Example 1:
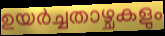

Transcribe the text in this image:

ഉയർച്ചതാഴ്ചകളും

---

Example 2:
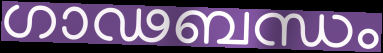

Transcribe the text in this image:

ഗാഢബന്ധം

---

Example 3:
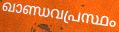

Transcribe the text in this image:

ഖാണ്ഡവപ്രസ്ഥം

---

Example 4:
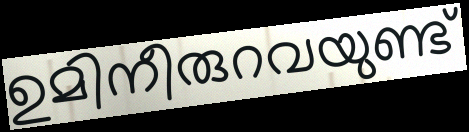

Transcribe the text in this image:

ഉമിനീരുറവയുണ്ട്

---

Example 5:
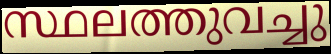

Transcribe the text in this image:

സ്ഥലത്തുവച്ചു